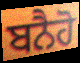
ਬਨੈਹੋ